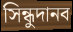
সিন্ধুদানব